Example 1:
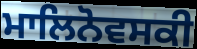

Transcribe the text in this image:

ਮਾਲਿਨੋਵਸਕੀ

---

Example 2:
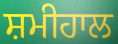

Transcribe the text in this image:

ਸ਼ਮੀਹਾਲ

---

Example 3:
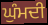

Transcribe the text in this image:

ਘੁੰਮਦੀ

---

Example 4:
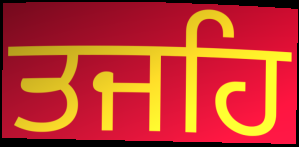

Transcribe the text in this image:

ਤਜਹਿ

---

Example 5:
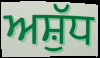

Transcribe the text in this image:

ਅਸ਼ੁੱਧ